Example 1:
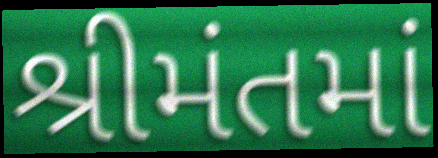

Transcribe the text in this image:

શ્રીમંતમાં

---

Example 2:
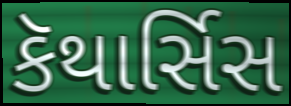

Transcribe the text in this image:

કૅથાર્સિસ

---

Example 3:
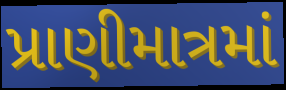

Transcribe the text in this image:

પ્રાણીમાત્રમાં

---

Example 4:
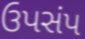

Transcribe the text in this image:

ઉપસંપ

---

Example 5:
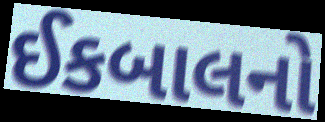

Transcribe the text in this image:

ઈકબાલનો